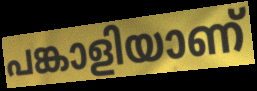
പങ്കാളിയാണ്